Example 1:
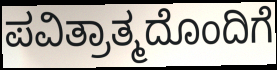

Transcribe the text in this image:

ಪವಿತ್ರಾತ್ಮದೊಂದಿಗೆ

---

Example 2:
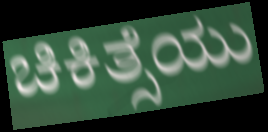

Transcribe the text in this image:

ಚಿಕಿತ್ಸೆಯು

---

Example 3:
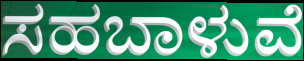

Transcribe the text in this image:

ಸಹಬಾಳುವೆ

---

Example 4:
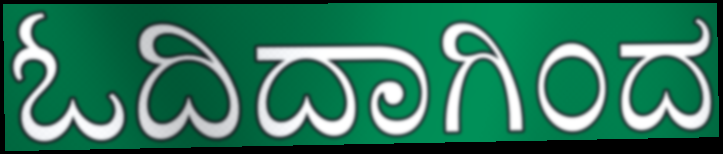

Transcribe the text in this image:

ಓದಿದಾಗಿಂದ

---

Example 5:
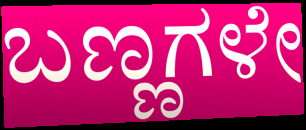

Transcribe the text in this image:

ಬಣ್ಣಗಳೇ